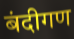
बंदीगण